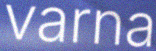
varna